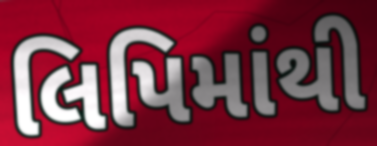
લિપિમાંથી